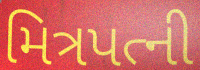
મિત્રપત્ની